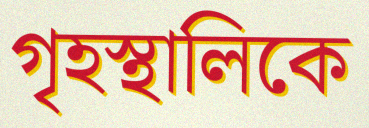
গৃহস্থালিকে